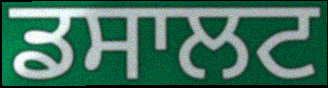
ਡਸਾਲਟ